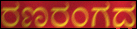
ರಣರಂಗದ